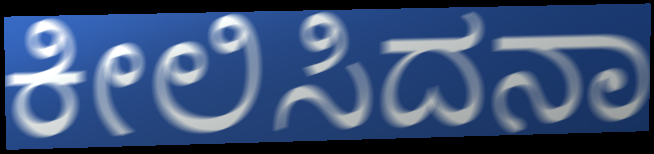
ಕೀಲಿಸಿದನಾ